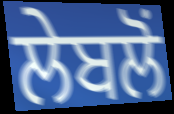
ਲੇਬਲੋਂ